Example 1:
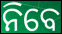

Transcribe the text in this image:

ନିବେ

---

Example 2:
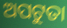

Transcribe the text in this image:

ଅପଟୁତା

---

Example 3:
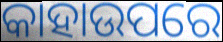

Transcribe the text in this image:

କାହାଉପରେ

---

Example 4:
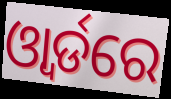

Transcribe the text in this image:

ଓ୍ବାର୍ଡରେ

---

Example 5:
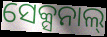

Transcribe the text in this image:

ସେକ୍ସନାଲ୍